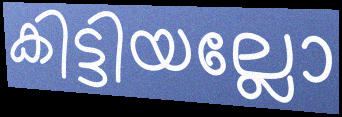
കിട്ടിയല്ലോ